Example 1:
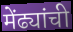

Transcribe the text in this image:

मेंढ्यांची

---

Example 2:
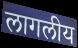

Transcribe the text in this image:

लागलीय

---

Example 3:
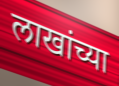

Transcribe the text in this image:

लाखांच्या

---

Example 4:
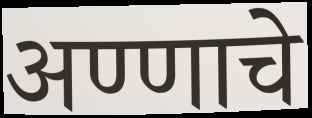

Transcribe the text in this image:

अण्णाचे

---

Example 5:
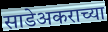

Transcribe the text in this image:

साडेअकराच्या